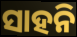
ସାହନି